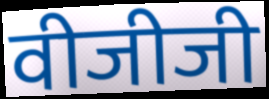
वीजीजी